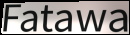
Fatawa